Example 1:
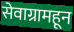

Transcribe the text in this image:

सेवाग्रामहून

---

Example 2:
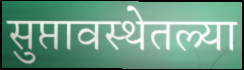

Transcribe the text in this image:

सुप्तावस्थेतल्या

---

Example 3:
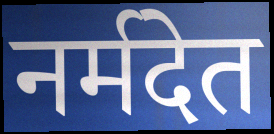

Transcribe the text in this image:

नर्मदेत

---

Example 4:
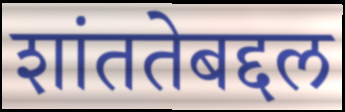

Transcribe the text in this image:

शांततेबद्दल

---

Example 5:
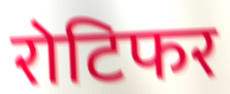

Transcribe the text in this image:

रोटिफर